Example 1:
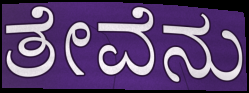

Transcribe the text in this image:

ತೇವೆನು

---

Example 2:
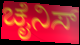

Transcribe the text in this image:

ಚೈನಿಸ್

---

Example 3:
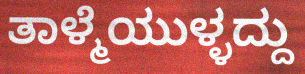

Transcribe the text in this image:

ತಾಳ್ಮೆಯುಳ್ಳದ್ದು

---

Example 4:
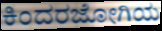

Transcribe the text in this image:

ಕಿಂದರಜೋಗಿಯ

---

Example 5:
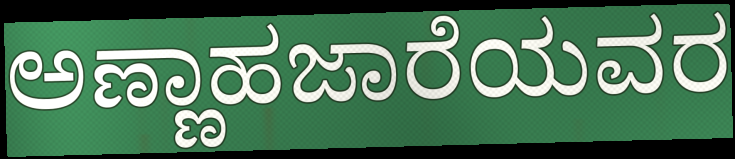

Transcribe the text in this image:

ಅಣ್ಣಾಹಜಾರೆಯವರ